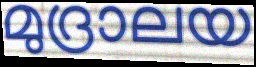
മുദ്രാലയ